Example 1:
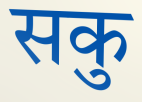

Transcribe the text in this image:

सकु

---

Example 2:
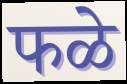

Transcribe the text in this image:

फळे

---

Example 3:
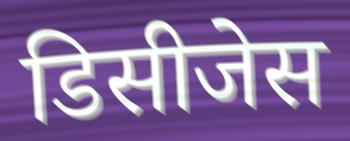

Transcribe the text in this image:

डिसीजेस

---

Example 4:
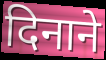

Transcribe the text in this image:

दिनाने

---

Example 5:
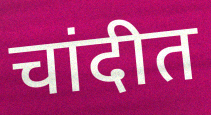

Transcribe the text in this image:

चांदीत